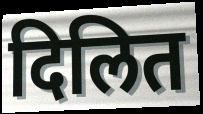
दिलित